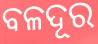
ବଳଦୂର